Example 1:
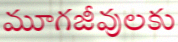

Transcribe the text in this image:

మూగజీవులకు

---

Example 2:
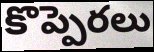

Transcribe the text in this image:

కొప్పెరలు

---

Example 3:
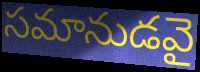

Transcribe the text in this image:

సమానుడవై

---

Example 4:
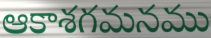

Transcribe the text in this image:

ఆకాశగమనము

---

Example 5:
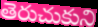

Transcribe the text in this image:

తెరుచుకుని